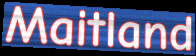
Maitland